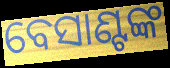
ବେସାଣ୍ଟଙ୍କ